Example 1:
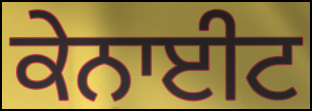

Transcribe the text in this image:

ਕੇਨਾਈਟ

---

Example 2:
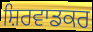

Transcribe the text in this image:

ਸ਼ਿਰਵਾਡਕਰ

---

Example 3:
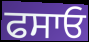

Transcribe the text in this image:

ਫਸਾਓ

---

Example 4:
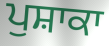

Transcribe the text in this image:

ਪੁਸ਼ਾਕਾ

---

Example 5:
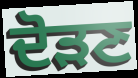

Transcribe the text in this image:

ਦੋੜਣ